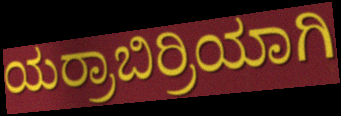
ಯರ್ರಾಬಿರ್ರಿಯಾಗಿ